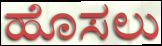
ಹೊಸಲು